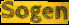
Sogen